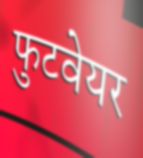
फुटवेयर